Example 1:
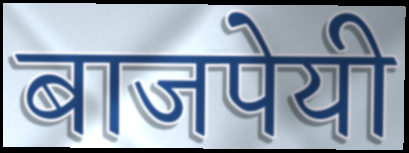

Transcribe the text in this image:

बाजपेयी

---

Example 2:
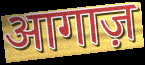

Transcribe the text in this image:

आगाज़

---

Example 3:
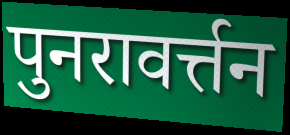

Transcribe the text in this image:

पुनरावर्त्तन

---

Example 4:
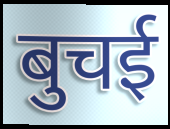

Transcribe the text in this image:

बुचई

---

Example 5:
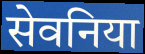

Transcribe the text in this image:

सेवनिया